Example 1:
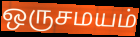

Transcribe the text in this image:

ஒருசமயம்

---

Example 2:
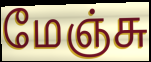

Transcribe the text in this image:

மேஞ்சு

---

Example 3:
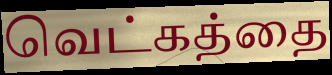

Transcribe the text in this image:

வெட்கத்தை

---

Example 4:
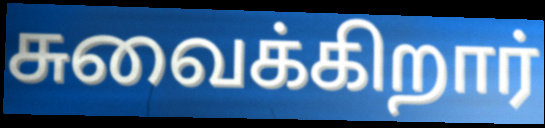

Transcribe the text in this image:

சுவைக்கிறார்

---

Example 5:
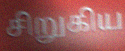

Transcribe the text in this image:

சிறுகிய